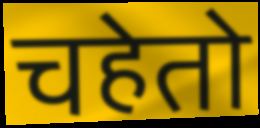
चहेतो